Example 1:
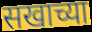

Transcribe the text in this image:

सखाच्या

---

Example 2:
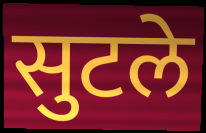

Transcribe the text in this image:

सुटले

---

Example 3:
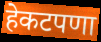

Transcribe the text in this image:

हेकटपणा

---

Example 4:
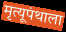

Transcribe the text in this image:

मृत्यूपंथाला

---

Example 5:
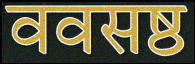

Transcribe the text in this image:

ववसष्ठ